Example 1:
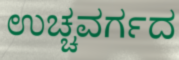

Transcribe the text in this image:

ಉಚ್ಚವರ್ಗದ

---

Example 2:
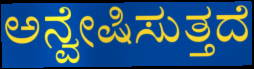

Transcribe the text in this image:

ಅನ್ವೇಷಿಸುತ್ತದೆ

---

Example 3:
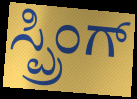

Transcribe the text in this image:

ಸ್ಪ್ರಿಂಗ್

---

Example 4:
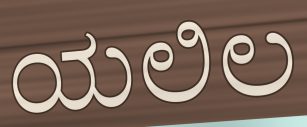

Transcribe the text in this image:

ಯಲಿಲ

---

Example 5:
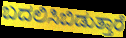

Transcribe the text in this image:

ಬದಲಿಸಿಬಿಡುತ್ತಾರೆ